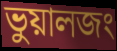
ভুয়ালজং